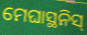
ମେଘାସ୍ଥନିସ୍